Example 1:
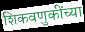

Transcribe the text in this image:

शिकवणुकींच्या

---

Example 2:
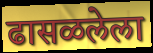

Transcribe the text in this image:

ढासळलेला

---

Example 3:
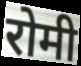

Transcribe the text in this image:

रोमी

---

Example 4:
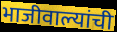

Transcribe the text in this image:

भाजीवाल्यांची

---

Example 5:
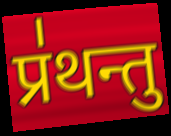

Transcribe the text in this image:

प्र॑थन्तु